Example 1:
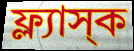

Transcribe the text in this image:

ফ্ল্যাস্‌ক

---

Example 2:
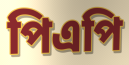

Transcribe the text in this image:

পিএপি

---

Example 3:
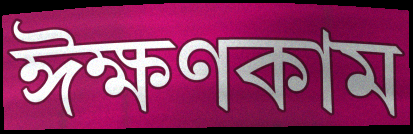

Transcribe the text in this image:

ঈক্ষণকাম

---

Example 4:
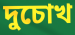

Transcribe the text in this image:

দুচোখ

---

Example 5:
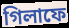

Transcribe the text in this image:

গিলাফে